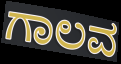
ಗಾಲವ